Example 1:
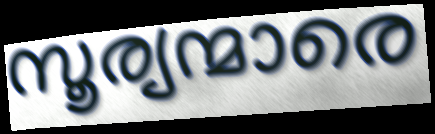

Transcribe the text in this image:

സൂര്യന്മാരെ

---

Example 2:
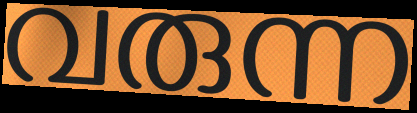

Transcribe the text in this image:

വരുന്ന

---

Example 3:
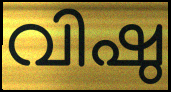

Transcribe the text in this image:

വിഷു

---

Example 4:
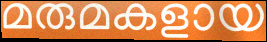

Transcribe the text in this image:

മരുമകളായ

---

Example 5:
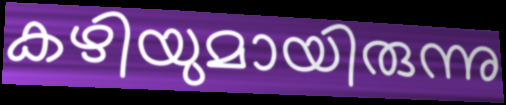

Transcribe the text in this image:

കഴിയുമായിരുന്നു